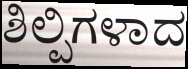
ಶಿಲ್ಪಿಗಳಾದ